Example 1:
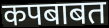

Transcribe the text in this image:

कपबाबत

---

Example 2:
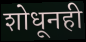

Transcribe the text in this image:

शोधूनही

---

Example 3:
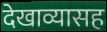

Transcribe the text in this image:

देखाव्यासह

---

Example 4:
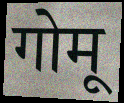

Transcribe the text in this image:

गोमू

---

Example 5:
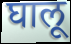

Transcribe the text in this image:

घालू